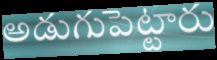
అడుగుపెట్టారు